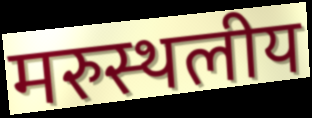
मरुस्थलीय